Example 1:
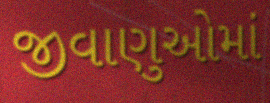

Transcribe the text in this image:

જીવાણુઓમાં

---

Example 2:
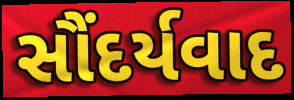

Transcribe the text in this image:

સૌંદર્યવાદ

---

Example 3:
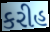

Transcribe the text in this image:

કરીહ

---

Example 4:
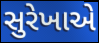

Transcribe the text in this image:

સુરેખાએ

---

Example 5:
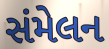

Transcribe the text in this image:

સંમેલન